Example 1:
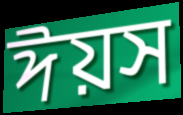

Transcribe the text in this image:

ঈয়স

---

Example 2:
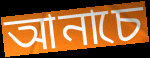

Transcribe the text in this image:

আনাচে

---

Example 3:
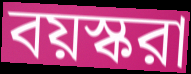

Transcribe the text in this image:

বয়স্করা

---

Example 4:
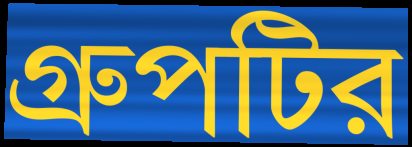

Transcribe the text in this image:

গ্রুপটির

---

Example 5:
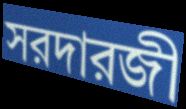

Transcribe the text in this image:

সরদারজী